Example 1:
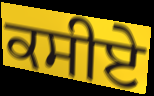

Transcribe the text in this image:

ਕਸੀਏ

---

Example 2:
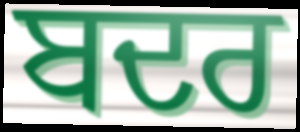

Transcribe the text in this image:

ਬਦਰ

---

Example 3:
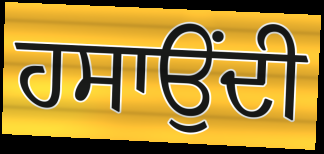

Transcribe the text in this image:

ਹਸਾਉਂਦੀ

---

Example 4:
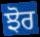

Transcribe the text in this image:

ਝੋਰ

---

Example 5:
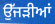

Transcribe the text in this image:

ਉੱਜੜੀਆਂ